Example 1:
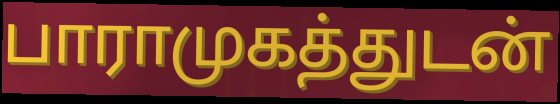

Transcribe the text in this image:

பாராமுகத்துடன்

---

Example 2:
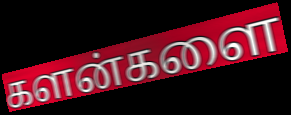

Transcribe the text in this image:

களன்களை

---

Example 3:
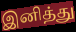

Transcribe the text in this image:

இனித்து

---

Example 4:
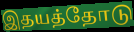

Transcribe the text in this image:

இதயத்தோடு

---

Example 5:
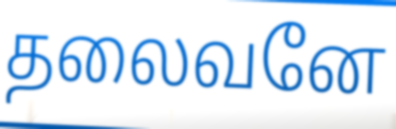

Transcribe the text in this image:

தலைவனே